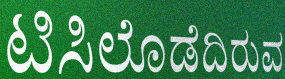
ಟಿಸಿಲೊಡೆದಿರುವ